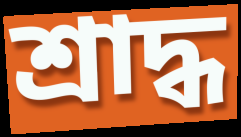
শ্ৰাদ্ধ